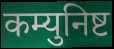
कम्युनिष्ट